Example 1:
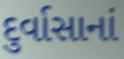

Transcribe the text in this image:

દુર્વાસાનાં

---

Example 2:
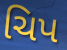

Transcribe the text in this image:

ચિપ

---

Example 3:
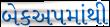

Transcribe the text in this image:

બેકઅપમાંથી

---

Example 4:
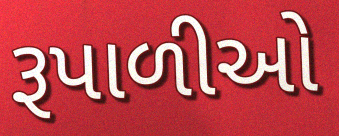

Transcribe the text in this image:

રૂપાળીઓ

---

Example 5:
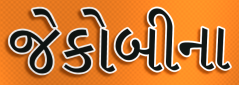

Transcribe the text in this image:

જેકોબીના